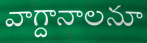
వాగ్దానాలనూ